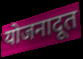
योजनादूत